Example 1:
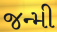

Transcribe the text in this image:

જન્મી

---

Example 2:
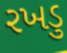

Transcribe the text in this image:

રખડુ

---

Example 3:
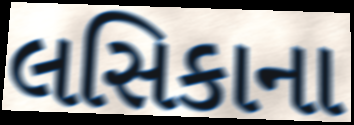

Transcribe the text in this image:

લસિકાના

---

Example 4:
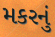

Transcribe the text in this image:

મકરનું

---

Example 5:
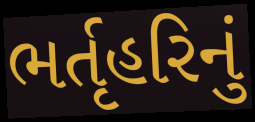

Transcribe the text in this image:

ભર્તૃહરિનું